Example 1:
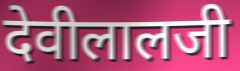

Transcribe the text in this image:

देवीलालजी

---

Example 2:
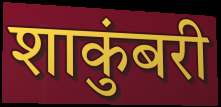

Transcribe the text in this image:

शाकुंबरी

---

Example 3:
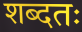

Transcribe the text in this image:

शब्दतः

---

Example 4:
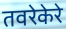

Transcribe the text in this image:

तवरेकेरे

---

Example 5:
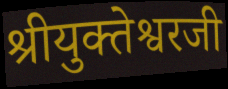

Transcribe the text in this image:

श्रीयुक्तेश्वरजी